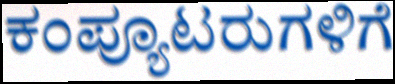
ಕಂಪ್ಯೂಟರುಗಳಿಗೆ